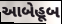
આબેહૂબ